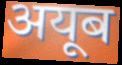
अयूब